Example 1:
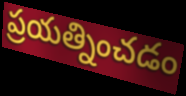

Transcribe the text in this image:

ప్రయత్నించడం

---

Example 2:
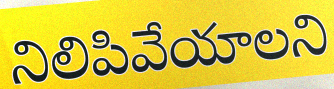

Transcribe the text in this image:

నిలిపివేయాలని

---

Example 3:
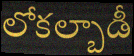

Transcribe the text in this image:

లోకల్బాడీ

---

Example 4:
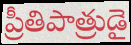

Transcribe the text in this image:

ప్రీతిపాత్రుడై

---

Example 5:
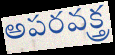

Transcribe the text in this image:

అపరవక్త్ర